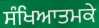
ਸੰਖਿਆਤਮਕੇ